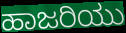
ಹಾಜರಿಯು